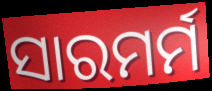
ସାରମର୍ମ